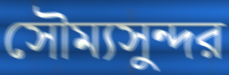
সৌম্যসুন্দর